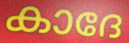
കാദേ